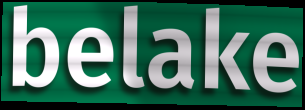
belake